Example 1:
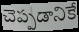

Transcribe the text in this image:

చెప్పడానికే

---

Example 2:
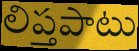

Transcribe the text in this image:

లిప్తపాటు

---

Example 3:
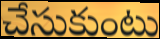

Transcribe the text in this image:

చేసుకుంటు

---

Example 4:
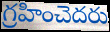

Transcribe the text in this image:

గ్రహించెదరు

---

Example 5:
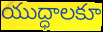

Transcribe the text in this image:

యుద్ధాలకూ